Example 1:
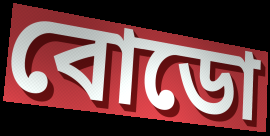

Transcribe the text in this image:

বোডো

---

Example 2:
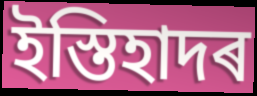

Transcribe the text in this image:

ইস্তিহাদৰ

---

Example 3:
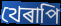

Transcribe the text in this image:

থেৰাপি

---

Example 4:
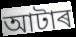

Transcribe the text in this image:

আটাৰ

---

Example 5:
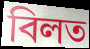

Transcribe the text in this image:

বিলত